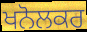
ਖਨੋਲਕਰ